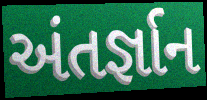
અંતર્જ્ઞાન